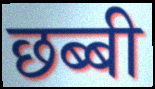
छब्बी